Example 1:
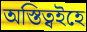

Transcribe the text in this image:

অস্তিত্বইহে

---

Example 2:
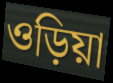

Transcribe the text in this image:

ওড়িয়া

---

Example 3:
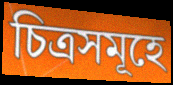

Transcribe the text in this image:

চিত্ৰসমূহে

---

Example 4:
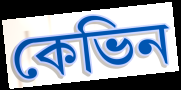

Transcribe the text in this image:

কেভিন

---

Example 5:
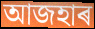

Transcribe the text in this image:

আজহাৰ